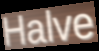
Halve